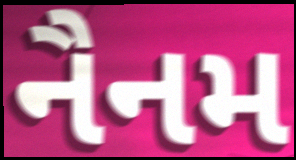
નૈનમ